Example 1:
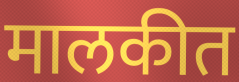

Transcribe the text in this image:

मालकीत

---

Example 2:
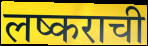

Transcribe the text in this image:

लष्कराची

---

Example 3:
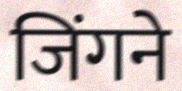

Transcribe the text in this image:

जिंगने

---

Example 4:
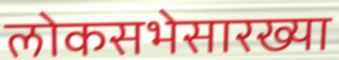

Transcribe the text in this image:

लोकसभेसारख्या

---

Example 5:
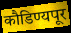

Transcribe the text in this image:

कौडिण्यपूर